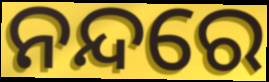
ନନ୍ଦରେ